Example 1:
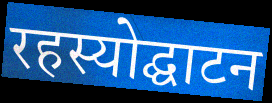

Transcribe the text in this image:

रहस्योद्घाटन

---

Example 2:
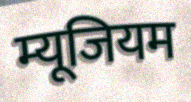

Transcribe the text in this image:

म्यूजियम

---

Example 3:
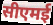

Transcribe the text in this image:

सीएमई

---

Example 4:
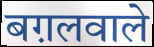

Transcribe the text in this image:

बग़लवाले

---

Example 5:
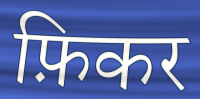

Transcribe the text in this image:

फ़िकर